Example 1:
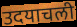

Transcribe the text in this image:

उदयाचली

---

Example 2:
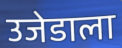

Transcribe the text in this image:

उजेडाला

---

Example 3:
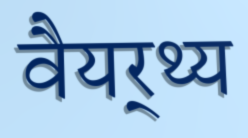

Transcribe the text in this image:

वैयर्थ्य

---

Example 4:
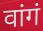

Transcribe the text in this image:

वांगं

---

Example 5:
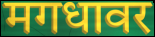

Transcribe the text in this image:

मगधावर